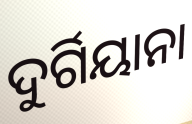
ଦୁର୍ଗିୟାନା